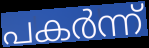
പകർന്ന്